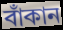
বাঁকান